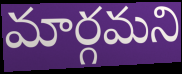
మార్గమని